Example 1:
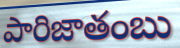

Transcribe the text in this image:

పారిజాతంబు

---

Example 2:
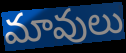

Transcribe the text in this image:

మావులు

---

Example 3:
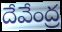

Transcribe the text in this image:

దేవేంద్ర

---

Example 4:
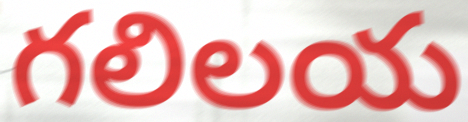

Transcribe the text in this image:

గలిలయ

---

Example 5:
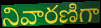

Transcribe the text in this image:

నివారణిగా